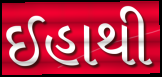
ઈહાથી